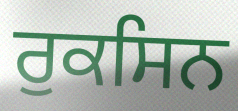
ਰੁਕਸਿਨ